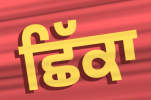
ਛਿੱਕਾ